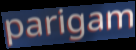
parigam